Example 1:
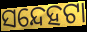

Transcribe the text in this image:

ସନ୍ଦେହଟା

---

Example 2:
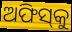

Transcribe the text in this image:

ଅଫିସ୍‌କୁ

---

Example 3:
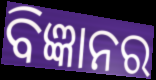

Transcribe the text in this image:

ବିଜ୍ଞାନର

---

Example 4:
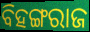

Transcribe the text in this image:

ବିହଙ୍ଗରାଜ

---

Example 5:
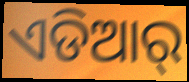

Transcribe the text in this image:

ଏଡିଆର୍